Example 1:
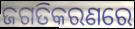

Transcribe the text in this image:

ଜଗତିକରଣରେ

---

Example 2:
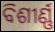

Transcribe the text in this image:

ବିଶୀର୍ଣ୍ଣ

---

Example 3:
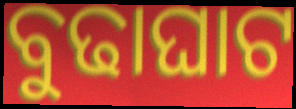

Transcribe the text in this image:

ବୁଢାଘାଟ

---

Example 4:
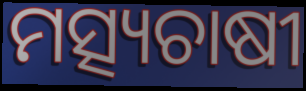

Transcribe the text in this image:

ମତ୍ସ୍ୟଚାଷୀ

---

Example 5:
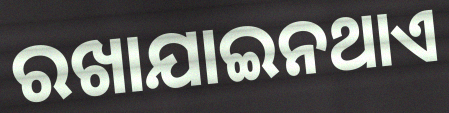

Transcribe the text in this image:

ରଖାଯାଇନଥାଏ